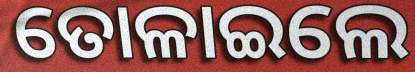
ତୋଳାଇଲେ